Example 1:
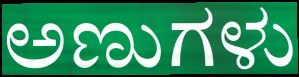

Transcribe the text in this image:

ಅಣುಗಳು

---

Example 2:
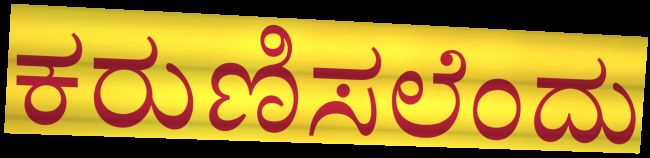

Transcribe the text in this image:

ಕರುಣಿಸಲೆಂದು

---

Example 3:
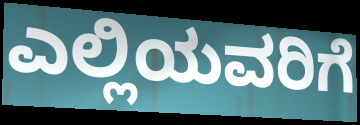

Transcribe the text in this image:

ಎಲ್ಲಿಯವರಿಗೆ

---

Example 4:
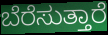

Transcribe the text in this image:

ಬೆರೆಸುತ್ತಾರೆ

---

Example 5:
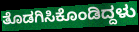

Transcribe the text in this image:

ತೊಡಗಿಸಿಕೊಂಡಿದ್ದಳು